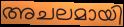
അചലമായി